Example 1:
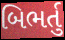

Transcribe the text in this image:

બિભર્તુ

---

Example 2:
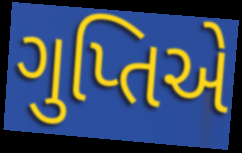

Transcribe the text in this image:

ગુપ્તિએ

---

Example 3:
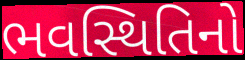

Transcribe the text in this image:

ભવસ્થિતિનો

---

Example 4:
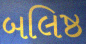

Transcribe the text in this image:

બલિષ્ઠ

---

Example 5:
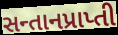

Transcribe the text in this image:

સન્તાનપ્રાપ્તી